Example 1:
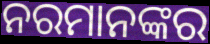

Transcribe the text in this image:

ନରମାନଙ୍କର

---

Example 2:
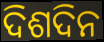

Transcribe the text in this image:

ଦିଶଦିନ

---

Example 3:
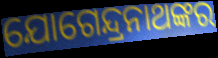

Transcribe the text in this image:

ଯୋଗେନ୍ଦ୍ରନାଥଙ୍କର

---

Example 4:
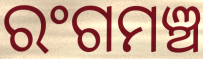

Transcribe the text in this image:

ରଂଗମଞ୍ଚ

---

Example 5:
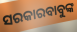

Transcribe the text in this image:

ସରକାରବାବୁଙ୍କ